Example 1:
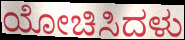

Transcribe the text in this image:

ಯೋಚಿಸಿದಳು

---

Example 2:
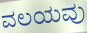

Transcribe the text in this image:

ವಲಯವು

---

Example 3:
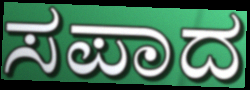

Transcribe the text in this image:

ಸಪಾದ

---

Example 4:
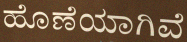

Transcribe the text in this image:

ಹೊಣೆಯಾಗಿವೆ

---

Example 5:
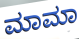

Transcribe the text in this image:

ಮಾಮಾ